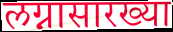
लग्नासारख्या